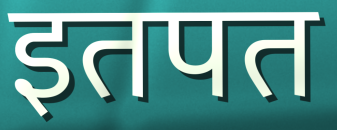
इतपत